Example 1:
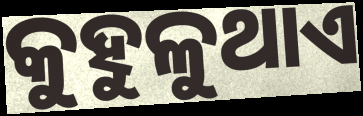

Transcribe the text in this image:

କୁହୁଳୁଥାଏ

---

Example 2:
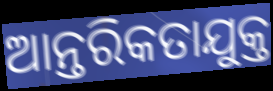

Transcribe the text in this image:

ଆନ୍ତରିକତାଯୁକ୍ତ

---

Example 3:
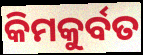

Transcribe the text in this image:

କିମକୁର୍ବତ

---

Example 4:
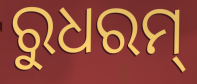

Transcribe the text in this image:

ରୁଧରମ୍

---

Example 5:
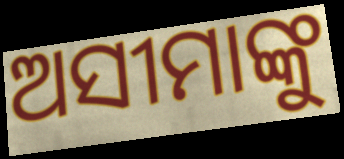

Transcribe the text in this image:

ଅସୀମାଙ୍କୁ